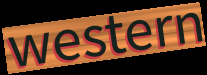
western